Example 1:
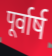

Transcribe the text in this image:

पूर्वार्ष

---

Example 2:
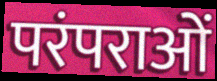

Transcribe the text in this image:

परंपराओं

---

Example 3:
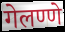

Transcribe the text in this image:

गेलण्णे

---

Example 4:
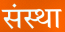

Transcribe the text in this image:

संस्था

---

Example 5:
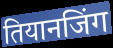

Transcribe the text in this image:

तियानजिंग